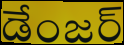
డేంజర్